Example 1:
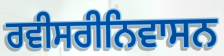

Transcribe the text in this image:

ਰਵੀਸਰੀਨਿਵਾਸਨ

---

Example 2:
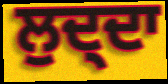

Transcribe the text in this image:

ਲੁਦ੍ਦਾ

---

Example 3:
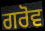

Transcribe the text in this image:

ਗਰੋਵ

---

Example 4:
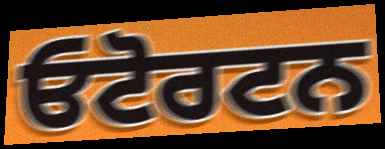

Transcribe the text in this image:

ਓਟੋਰਟਨ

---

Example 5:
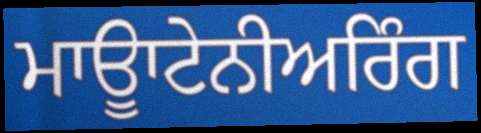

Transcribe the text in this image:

ਮਾਊਾਟੇਨੀਅਰਿੰਗ